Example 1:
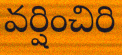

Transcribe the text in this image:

వర్షించిరి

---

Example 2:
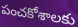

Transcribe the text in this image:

పంచకోశాలకు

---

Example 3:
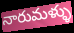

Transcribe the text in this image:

నారుమళ్ళు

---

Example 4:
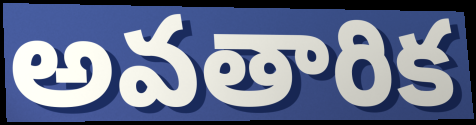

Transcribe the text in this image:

అవతారిక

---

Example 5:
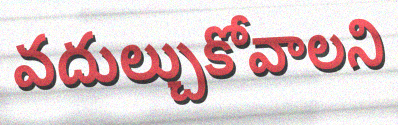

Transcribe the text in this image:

వదుల్చుకోవాలని